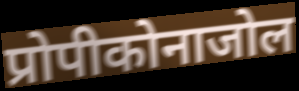
प्रोपीकोनाजोल